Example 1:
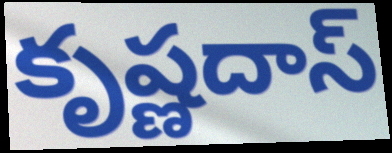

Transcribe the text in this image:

కృష్ణదాస్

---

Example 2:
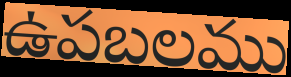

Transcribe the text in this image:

ఉపబలము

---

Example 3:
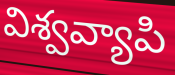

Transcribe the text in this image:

విశ్వవ్యాపి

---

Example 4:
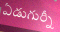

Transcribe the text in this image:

ఏడుగుర్నీ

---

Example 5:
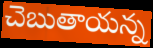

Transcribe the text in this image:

చెబుతాయన్న